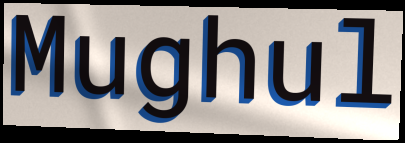
Mughul